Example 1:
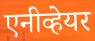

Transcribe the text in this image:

एनीव्हेयर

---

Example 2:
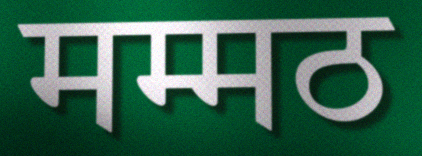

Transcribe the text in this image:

मम्मठ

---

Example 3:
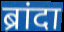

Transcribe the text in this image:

ब्रांदा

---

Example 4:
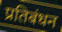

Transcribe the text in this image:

प्रतिबंधन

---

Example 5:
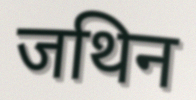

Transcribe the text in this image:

जथिन